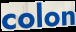
colon